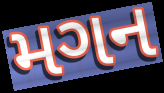
મગન